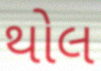
થોલ